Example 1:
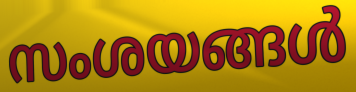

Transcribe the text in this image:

സംശയങ്ങൾ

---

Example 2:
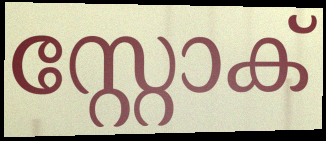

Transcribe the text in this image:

സ്റ്റോക്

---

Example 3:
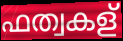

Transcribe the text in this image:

ഫത്വകള്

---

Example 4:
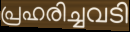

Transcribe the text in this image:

പ്രഹരിച്ചവടി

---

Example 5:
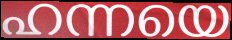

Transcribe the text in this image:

ഹന്നയെ